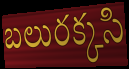
బలురక్కసి